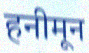
हनीमून